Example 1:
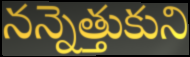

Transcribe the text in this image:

నన్నెత్తుకుని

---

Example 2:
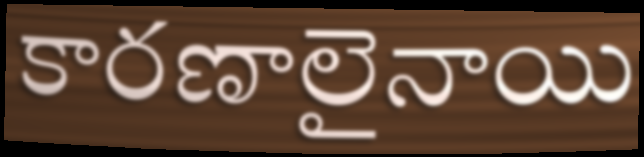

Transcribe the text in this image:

కారణాలైనాయి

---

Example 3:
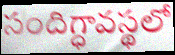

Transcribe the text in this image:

సందిగ్ధావస్థలో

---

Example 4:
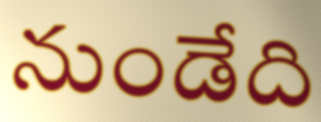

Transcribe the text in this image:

నుండేది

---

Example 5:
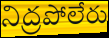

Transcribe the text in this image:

నిద్రపోలేరు